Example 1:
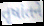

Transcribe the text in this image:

તૃષાંતને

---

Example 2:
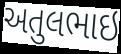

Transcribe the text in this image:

અતુલભાઇ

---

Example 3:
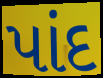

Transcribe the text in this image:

પાંદ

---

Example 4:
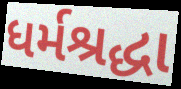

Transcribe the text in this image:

ધર્મશ્રદ્ધા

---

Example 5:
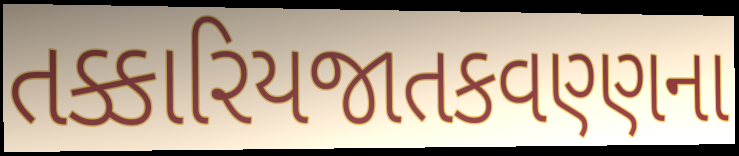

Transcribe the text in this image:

તક્કારિયજાતકવણ્ણના